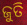
ଜୁତି